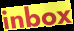
inbox